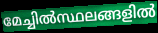
മേച്ചിൽസ്ഥലങ്ങളിൽ